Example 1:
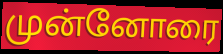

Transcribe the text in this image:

முன்னோரை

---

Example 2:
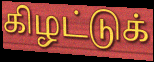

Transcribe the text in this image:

கிழட்டுக்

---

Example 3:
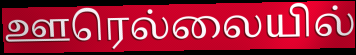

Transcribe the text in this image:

ஊரெல்லையில்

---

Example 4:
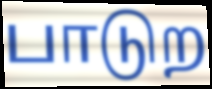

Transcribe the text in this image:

பாடுற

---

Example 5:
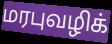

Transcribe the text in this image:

மரபுவழிக்